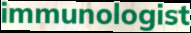
immunologist